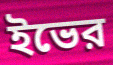
ইভের